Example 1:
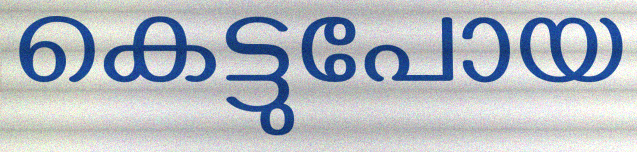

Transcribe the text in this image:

കെട്ടുപോയ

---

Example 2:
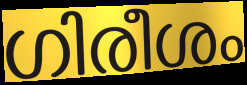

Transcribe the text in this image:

ഗിരീശം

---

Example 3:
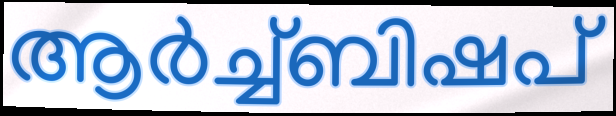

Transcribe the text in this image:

ആർച്ച്ബിഷപ്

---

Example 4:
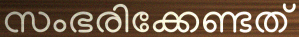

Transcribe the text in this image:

സംഭരിക്കേണ്ടത്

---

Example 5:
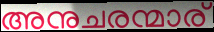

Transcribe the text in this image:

അനുചരന്മാര്